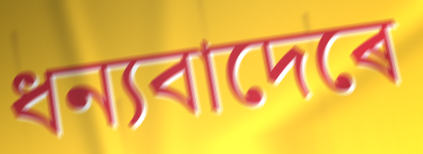
ধন্যবাদেৰে